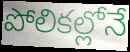
పోలికల్లోనే